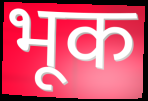
भूक